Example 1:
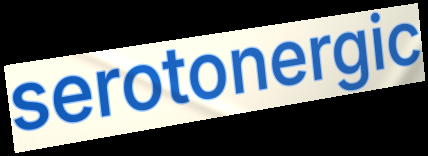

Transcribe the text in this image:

serotonergic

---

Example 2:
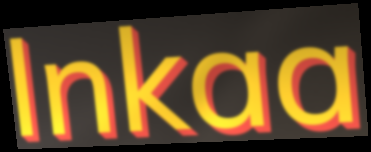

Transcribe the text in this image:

Inkaa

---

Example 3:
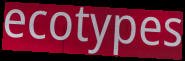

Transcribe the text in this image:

ecotypes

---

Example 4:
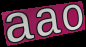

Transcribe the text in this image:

aao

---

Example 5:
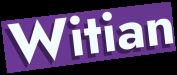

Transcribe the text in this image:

Witian